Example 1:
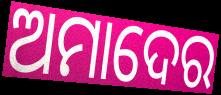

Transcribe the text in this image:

ଅମାଦେର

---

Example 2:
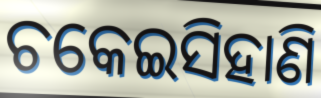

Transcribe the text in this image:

ଚକେଇସିହାଣି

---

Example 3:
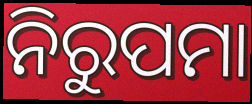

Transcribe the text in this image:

ନିରୁପମା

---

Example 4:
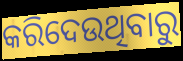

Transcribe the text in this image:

କରିଦେଉଥିବାରୁ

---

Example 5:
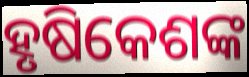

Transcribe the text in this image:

ହୃଷିକେଶଙ୍କ